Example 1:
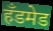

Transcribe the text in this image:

हॅंडमेड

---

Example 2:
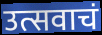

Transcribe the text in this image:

उत्सवाचं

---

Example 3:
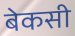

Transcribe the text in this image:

बेकसी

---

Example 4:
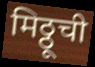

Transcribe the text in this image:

मिठ्ठूची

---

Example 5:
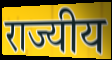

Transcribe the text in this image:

राज्यीय